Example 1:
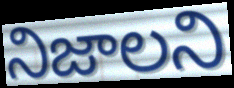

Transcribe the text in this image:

నిజాలని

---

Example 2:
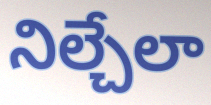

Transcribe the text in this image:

నిల్చేలా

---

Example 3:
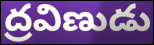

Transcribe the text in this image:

ద్రవిణుడు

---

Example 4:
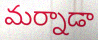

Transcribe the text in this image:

మర్నాడా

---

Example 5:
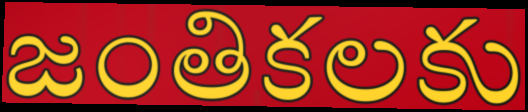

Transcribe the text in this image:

జంతికలకు